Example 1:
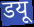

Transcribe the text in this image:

डयू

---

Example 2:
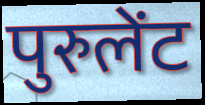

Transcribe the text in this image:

पुरुलेंट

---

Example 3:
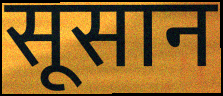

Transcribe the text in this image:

सूसान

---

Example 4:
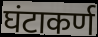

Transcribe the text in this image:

घंटाकर्ण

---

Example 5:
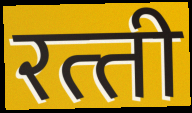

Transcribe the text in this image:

रत्‍ती